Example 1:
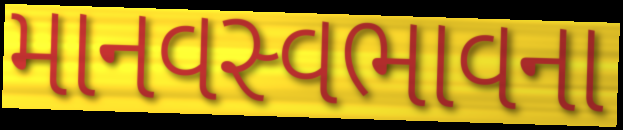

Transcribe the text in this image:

માનવસ્વભાવના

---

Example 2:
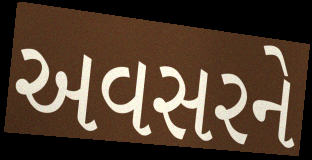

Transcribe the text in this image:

અવસરને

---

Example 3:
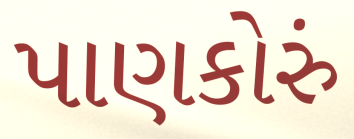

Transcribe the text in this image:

પાણકોરું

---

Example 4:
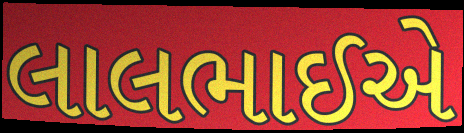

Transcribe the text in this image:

લાલભાઈએ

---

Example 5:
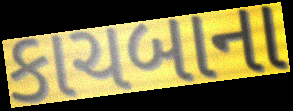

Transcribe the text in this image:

કાચબાના